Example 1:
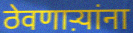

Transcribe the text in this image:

ठेवणाऱ्‍यांना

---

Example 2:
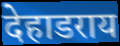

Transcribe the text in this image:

देहाडराय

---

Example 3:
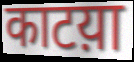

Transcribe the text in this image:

काटय़ा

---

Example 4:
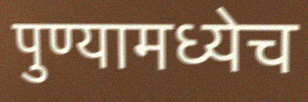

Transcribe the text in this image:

पुण्यामध्येच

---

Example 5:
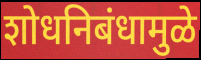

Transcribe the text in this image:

शोधनिबंधामुळे